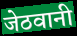
जेठवानी